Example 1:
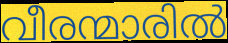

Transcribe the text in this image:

വീരന്മാരിൽ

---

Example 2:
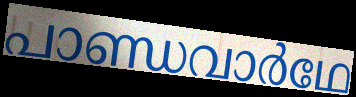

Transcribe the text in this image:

പാണ്ഡവാർഥേ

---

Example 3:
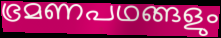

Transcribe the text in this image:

ഭ്രമണപഥങ്ങളും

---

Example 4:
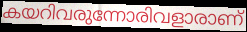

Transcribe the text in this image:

കയറിവരുന്നോരിവളാരാണ്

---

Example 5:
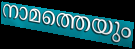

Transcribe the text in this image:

നാമത്തെയും